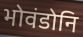
भोवंडोनि